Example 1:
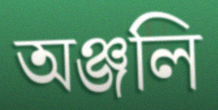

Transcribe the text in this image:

অঞ্জলি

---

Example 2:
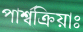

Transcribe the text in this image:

পাৰ্শ্বক্ৰিয়াঃ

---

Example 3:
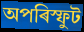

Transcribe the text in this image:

অপৰিস্ফুট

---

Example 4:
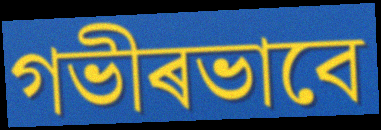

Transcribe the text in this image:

গভীৰভাবে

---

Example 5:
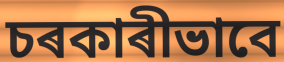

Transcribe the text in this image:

চৰকাৰীভাবে